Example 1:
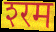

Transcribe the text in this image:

श्रम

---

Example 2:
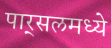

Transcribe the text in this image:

पार्सलमध्ये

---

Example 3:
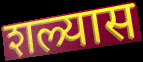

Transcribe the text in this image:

शल्यास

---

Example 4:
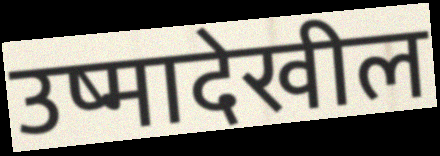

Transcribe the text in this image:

उष्मादेखील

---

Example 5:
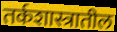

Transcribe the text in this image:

तर्कशास्त्रातील